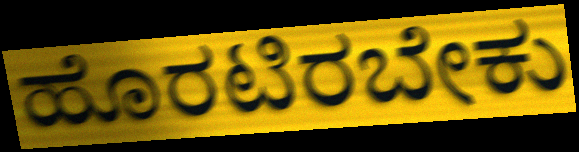
ಹೊರಟಿರಬೇಕು